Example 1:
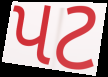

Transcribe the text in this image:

પટ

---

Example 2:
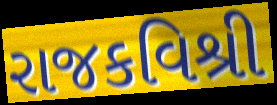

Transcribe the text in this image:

રાજકવિશ્રી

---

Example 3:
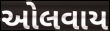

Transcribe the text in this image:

ઓલવાય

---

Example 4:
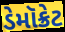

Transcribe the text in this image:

ડેમૉક્રેટ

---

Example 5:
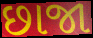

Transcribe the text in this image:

છાજા